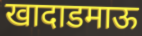
खादाडमाऊ